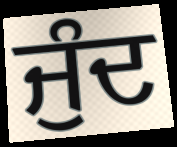
ਜੁੰਦ